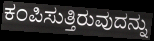
ಕಂಪಿಸುತ್ತಿರುವುದನ್ನು